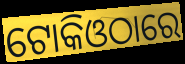
ଟୋକିଓଠାରେ